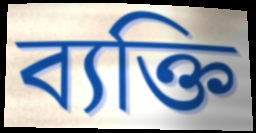
ব্যক্তি